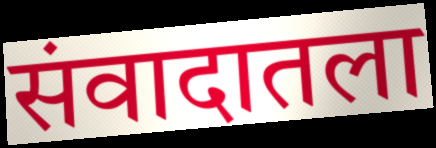
संवादातला